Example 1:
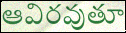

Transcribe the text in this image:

ఆవిరవుతూ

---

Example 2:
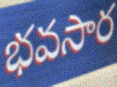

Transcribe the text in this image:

భవసార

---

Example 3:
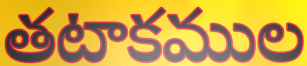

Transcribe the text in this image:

తటాకముల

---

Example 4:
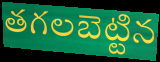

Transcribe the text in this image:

తగలబెట్టిన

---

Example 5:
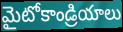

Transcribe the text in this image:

మైటోకాండ్రియాలు